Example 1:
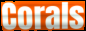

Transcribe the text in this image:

Corals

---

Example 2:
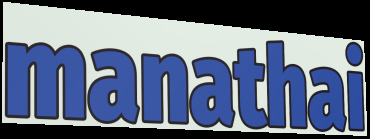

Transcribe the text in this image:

manathai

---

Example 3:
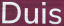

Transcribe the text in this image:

Duis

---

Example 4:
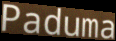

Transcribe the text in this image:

Paduma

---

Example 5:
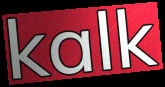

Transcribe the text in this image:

kalk